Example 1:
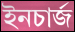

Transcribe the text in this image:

ইনচার্জ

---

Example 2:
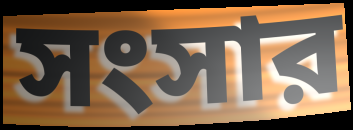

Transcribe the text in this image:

সংসার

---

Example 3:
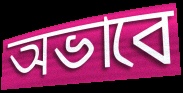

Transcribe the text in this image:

অভাবে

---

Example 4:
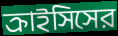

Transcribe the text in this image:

ক্রাইসিসের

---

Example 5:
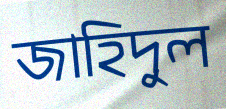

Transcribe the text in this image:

জাহিদুল